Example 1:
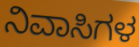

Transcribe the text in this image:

ನಿವಾಸಿಗಳ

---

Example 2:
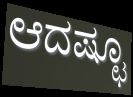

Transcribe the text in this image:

ಆದಷ್ಟೂ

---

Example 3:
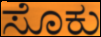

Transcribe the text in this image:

ಸೊಕು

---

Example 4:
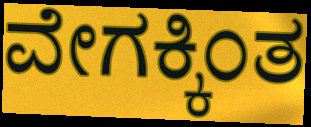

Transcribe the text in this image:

ವೇಗಕ್ಕಿಂತ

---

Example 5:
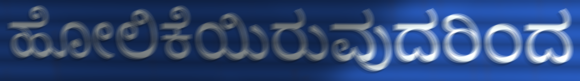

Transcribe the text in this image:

ಹೋಲಿಕೆಯಿರುವುದರಿಂದ